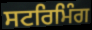
ਸਟਰਿਮਿੰਗ